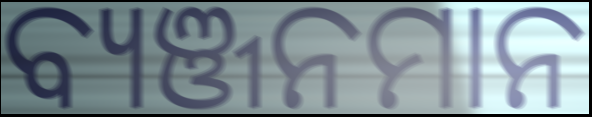
ବ୍ୟଞ୍ଜନମାନ